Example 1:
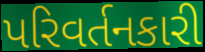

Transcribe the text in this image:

પરિવર્તનકારી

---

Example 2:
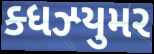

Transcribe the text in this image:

ક્ધઝ્યુમર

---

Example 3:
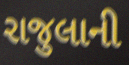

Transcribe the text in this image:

રાજુલાની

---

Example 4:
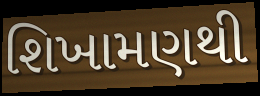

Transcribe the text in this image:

શિખામણથી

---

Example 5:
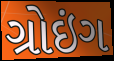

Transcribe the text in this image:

ગ્રોઇંગ